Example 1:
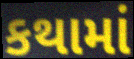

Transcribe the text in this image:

કથામાં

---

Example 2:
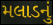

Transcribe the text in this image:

મલાડનું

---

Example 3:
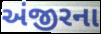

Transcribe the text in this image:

અંજીરના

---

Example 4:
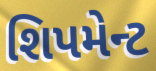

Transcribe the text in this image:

શિપમેન્ટ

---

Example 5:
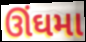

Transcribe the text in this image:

ઊંઘમા